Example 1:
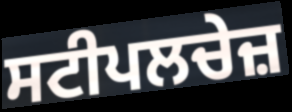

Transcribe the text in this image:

ਸਟੀਪਲਚੇਜ਼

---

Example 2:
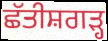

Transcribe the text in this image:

ਛੱਤੀਸ਼ਗੜ੍ਹ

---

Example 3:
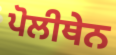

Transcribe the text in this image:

ਪੋਲੀਥੇਨ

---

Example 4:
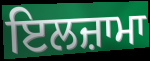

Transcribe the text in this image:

ਇਲਜ਼ਾਮਾ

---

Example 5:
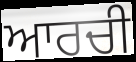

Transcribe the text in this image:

ਆਰਚੀ